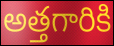
అత్తగారికి